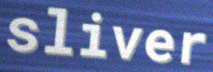
sliver